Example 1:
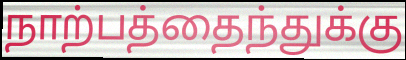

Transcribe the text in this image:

நாற்பத்தைந்துக்கு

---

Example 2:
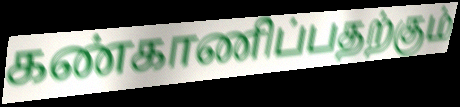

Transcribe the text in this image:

கண்காணிப்பதற்கும்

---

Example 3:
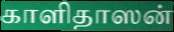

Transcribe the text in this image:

காளிதாஸன்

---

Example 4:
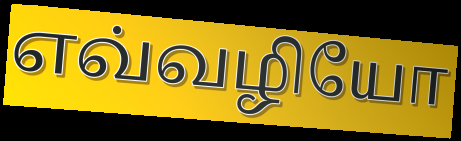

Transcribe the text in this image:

எவ்வழியோ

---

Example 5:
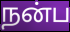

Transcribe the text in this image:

நன்ப